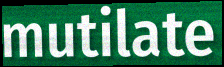
mutilate